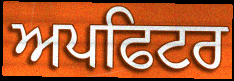
ਅਪਫਿਟਰ